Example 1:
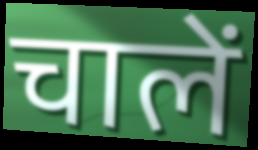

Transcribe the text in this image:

चालें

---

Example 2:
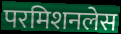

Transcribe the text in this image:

परमिशनलेस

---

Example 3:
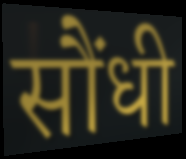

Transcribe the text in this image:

सौंधी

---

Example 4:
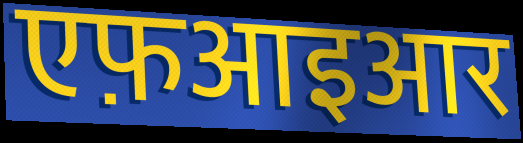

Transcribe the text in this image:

एफ़आइआर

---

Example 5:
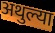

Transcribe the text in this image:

अथुल्या